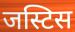
जस्टिस